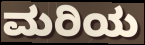
ಮರಿಯ